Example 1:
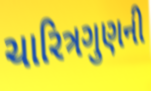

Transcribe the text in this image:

ચારિત્રગુણની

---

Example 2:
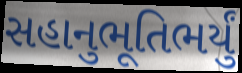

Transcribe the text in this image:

સહાનુભૂતિભર્યું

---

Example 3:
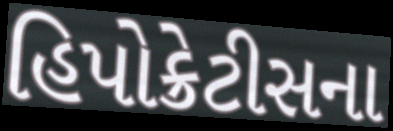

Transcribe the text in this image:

હિપોક્રેટીસના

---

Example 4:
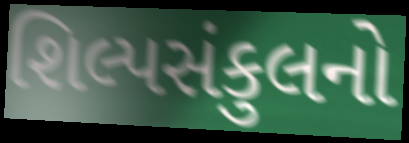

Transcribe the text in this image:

શિલ્પસંકુલનો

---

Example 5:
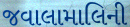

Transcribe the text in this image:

જવાલામાલિની